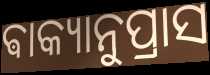
ଵାକ୍ୟାନୁପ୍ରାସ